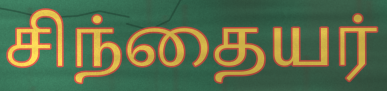
சிந்தையர்